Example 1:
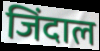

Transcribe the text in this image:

जिंदाल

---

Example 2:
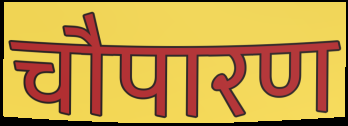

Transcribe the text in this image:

चौपारण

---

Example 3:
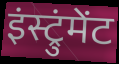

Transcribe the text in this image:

इंस्ट्रुंमेंट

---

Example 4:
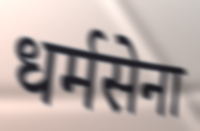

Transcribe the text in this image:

धर्मसेना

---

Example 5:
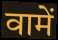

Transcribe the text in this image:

वामें